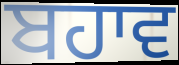
ਬਹਾਵ